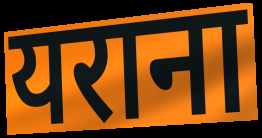
यराना